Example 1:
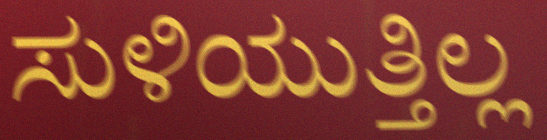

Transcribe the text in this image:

ಸುಳಿಯುತ್ತಿಲ್ಲ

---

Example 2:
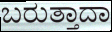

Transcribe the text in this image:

ಬರುತ್ತಾದಾ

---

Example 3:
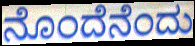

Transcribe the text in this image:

ನೊಂದೆನೆಂದು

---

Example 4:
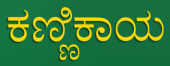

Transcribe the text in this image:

ಕಣ್ಣಿಕಾಯ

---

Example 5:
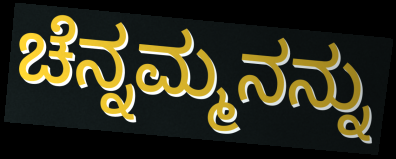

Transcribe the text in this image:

ಚೆನ್ನಮ್ಮನನ್ನು